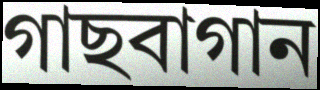
গাছবাগান